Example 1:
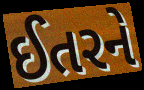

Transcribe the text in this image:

ઈતરને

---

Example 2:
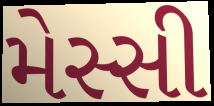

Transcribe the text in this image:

મેસ્સી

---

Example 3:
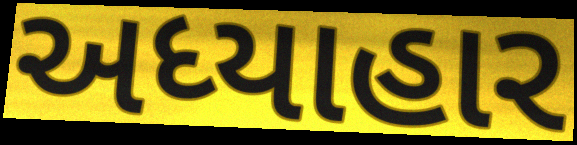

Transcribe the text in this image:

અધ્યાહાર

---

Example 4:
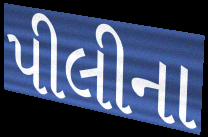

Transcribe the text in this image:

પીલીના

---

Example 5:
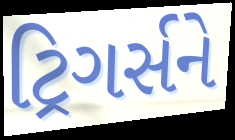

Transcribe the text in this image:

ટ્રિગર્સને